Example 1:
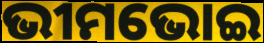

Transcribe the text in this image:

ଭୀମଭୋଇ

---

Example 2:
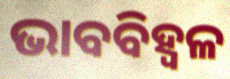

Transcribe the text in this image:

ଭାବବିହ୍ବଳ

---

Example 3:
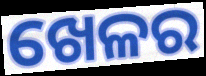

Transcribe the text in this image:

ଖେଳର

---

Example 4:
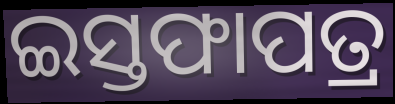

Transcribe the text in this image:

ଇସ୍ତଫାପତ୍ର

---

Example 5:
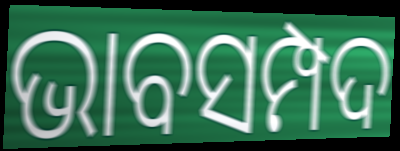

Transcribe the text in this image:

ଭାବସମ୍ପଦ